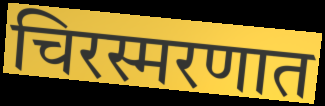
चिरस्मरणात